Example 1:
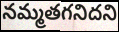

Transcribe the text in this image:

నమ్మతగనిదని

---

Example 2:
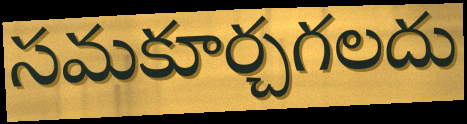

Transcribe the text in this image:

సమకూర్చగలదు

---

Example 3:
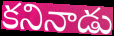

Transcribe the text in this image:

కనినాడు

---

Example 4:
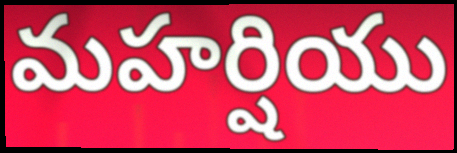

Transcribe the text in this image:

మహర్షియు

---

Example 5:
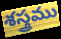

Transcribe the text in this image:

శస్త్రము